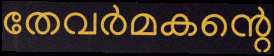
തേവർമകന്റെ